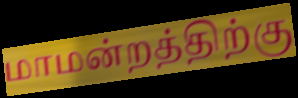
மாமன்றத்திற்கு